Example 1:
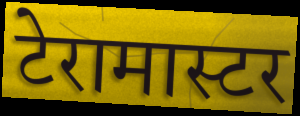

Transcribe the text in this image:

टेरामास्टर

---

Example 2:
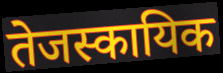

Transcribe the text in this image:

तेजस्कायिक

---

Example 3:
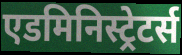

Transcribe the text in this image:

एडमिनिस्ट्रेटर्स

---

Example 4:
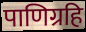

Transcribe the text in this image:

पाणिग्रहि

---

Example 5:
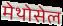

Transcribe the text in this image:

मेथोसेल